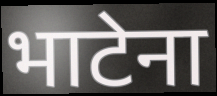
भाटेना